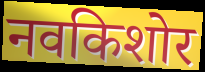
नवकिशोर